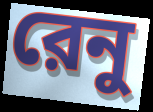
রেনু